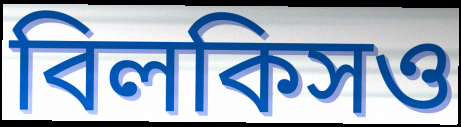
বিলকিসও